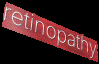
retinopathy